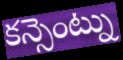
కన్సెంట్ను